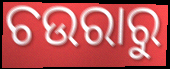
ଚଉରାରୁ